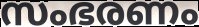
സംഭരണം